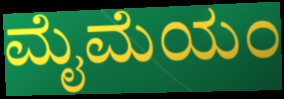
ಮೈಮೆಯಂ